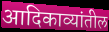
आदिकाव्यांतील